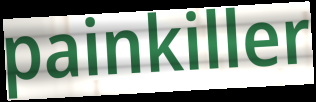
painkiller